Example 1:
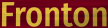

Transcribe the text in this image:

Fronton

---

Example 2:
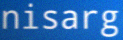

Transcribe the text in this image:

nisarg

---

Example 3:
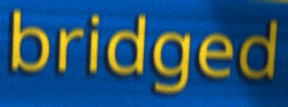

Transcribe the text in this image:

bridged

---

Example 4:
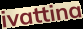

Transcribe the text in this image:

ivattina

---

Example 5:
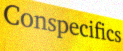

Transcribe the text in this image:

Conspecifics